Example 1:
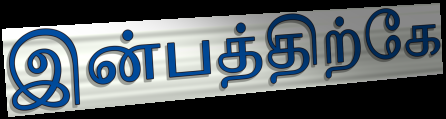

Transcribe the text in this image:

இன்பத்திற்கே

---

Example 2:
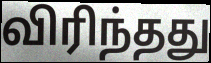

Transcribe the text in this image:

விரிந்தது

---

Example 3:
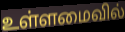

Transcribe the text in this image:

உள்ளமைவில்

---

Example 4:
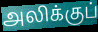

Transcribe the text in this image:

அலிக்குப்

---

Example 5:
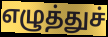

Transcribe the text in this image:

எழுத்துச்